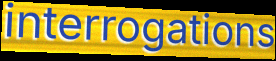
interrogations